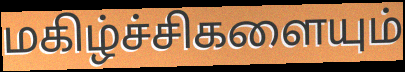
மகிழ்ச்சிகளையும்